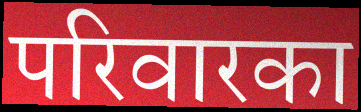
परिवारका